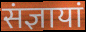
संज्ञायां